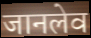
जानलेव